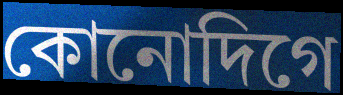
কোনোদিগে